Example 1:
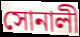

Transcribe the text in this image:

সোনালী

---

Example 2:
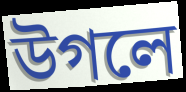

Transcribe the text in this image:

উগলে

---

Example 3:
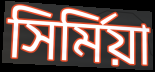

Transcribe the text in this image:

সির্মিয়া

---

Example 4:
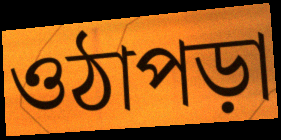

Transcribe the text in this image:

ওঠাপড়া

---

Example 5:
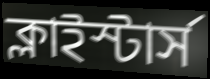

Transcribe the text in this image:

ক্লাইস্টার্স